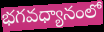
భగవధ్యానంలో